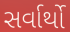
સર્વાર્થો